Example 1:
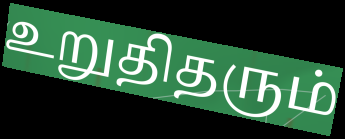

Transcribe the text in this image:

உறுதிதரும்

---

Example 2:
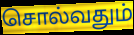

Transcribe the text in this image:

சொல்வதும்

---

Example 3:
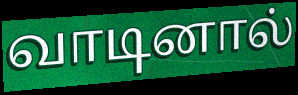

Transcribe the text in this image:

வாடினால்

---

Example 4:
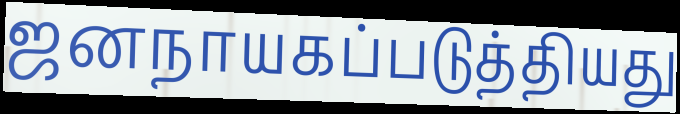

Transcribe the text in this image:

ஜனநாயகப்படுத்தியது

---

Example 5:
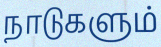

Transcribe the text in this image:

நாடுகளும்